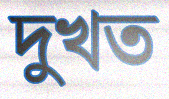
দুখত